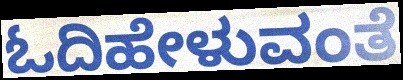
ಓದಿಹೇಳುವಂತೆ